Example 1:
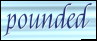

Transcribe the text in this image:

pounded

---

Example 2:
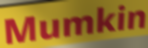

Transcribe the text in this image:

Mumkin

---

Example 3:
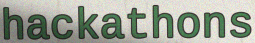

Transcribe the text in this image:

hackathons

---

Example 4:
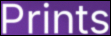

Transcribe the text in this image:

Prints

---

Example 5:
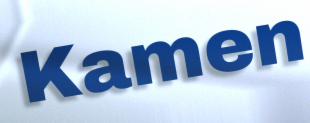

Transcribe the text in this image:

Kamen